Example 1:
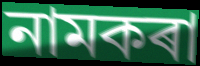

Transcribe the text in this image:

নামকৰা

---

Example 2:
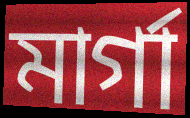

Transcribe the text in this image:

মাৰ্গা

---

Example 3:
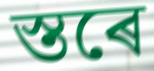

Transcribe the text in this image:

স্তৰে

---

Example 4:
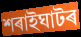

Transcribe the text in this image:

শৰাইঘাটৰ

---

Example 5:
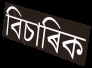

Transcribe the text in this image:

বিচাৰিক